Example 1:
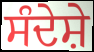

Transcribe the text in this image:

ਸੰਦੇਸ਼ੇ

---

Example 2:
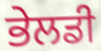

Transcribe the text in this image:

ਭੇਲਡੀ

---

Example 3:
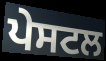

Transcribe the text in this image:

ਪੇਸਟਲ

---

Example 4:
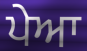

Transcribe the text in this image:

ਪੇਆ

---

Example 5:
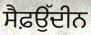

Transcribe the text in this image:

ਸੈਫ਼ਉੱਦੀਨ